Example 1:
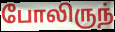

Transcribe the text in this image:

போலிருந்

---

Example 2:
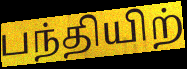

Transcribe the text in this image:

பந்தியிற்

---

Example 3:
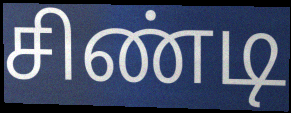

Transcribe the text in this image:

சிண்டி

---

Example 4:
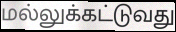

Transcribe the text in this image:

மல்லுக்கட்டுவது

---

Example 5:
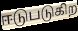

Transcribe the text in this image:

ஈடுபடுகிற